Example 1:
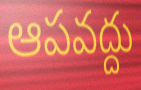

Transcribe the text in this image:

ఆపవద్దు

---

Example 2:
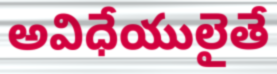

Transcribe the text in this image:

అవిధేయులైతే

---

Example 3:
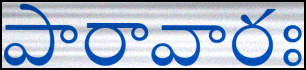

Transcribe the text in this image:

పారావారః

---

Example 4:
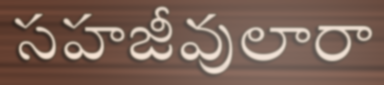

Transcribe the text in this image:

సహజీవులారా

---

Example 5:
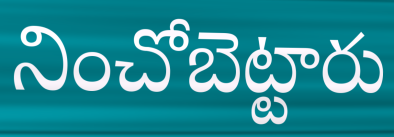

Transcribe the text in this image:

నించోబెట్టారు